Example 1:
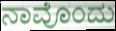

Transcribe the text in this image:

ನಾವೊಂದು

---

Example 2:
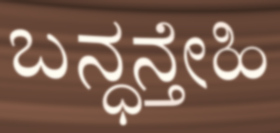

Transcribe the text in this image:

ಬನ್ಧನ್ತೇಹಿ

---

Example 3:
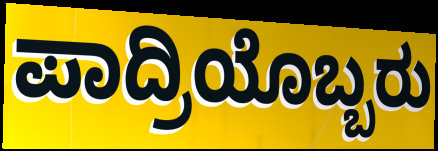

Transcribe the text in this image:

ಪಾದ್ರಿಯೊಬ್ಬರು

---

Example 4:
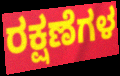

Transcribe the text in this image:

ರಕ್ಷಣೆಗಳ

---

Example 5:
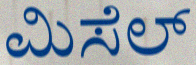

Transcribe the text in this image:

ಮಿಸೆಲ್